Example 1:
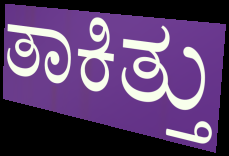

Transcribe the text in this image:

ತಾಕಿತ್ತು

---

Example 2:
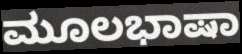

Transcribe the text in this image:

ಮೂಲಭಾಷಾ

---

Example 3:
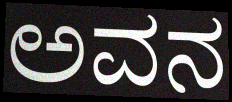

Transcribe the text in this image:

ಅವನ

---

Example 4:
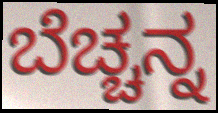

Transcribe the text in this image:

ಬೆಚ್ಚನ್ನ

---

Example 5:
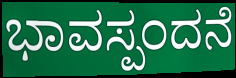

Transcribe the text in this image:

ಭಾವಸ್ಪಂದನೆ